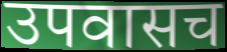
उपवासच